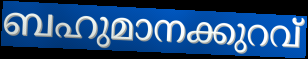
ബഹുമാനക്കുറവ്